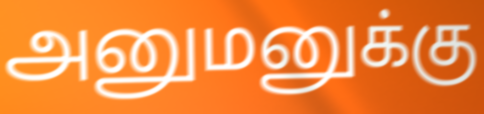
அனுமனுக்கு